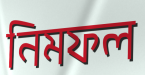
নিমফল